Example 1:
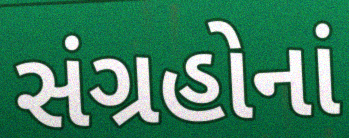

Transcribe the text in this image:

સંગ્રહોનાં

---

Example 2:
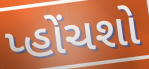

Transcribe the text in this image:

પ્હોંચશો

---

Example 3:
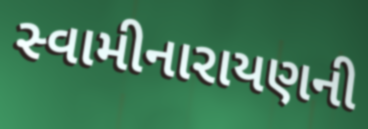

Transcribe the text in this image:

સ્વામીનારાયણની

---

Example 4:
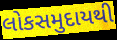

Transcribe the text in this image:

લોકસમુદાયથી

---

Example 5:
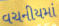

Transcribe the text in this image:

વચનીયમાં